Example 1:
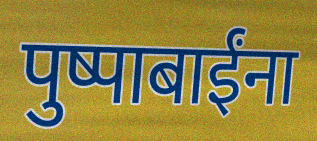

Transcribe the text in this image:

पुष्पाबाईंना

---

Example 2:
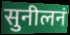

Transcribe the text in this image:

सुनीलनं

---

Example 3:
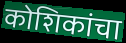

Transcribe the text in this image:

कोशिकांचा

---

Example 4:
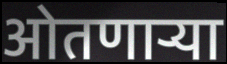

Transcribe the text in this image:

ओतणाऱ्या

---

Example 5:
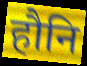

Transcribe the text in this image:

हौनि